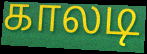
காலடி